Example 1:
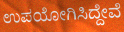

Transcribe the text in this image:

ಉಪಯೋಗಿಸಿದ್ದೇವೆ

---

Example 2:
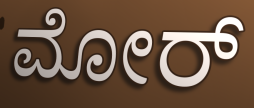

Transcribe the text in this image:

ಮೋರ್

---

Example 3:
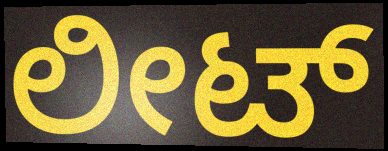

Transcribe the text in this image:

ಲೀಟ್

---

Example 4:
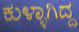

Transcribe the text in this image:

ಕುಳ್ಳಾಗಿದ್ದ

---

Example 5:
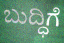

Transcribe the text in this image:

ಬುದ್ಧಿಗೆ